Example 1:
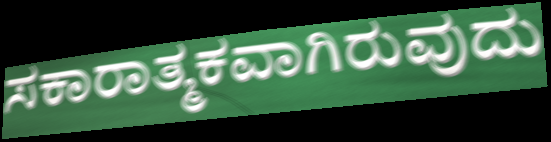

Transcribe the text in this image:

ಸಕಾರಾತ್ಮಕವಾಗಿರುವುದು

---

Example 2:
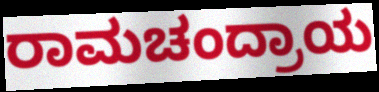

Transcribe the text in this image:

ರಾಮಚಂದ್ರಾಯ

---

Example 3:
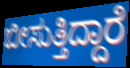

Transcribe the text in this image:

ಬೀಸುತ್ತಿದ್ದಾರೆ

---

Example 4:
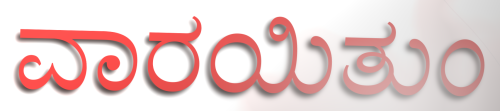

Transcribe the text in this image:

ವಾರಯಿತುಂ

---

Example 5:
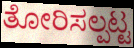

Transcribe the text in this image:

ತೋರಿಸಲ್ಪಟ್ಟ